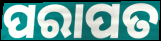
ପରାପତ